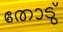
തോടു്